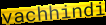
vachhindi